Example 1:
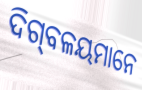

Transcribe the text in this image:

ଦିଗ୍‌ବଳୟମାନେ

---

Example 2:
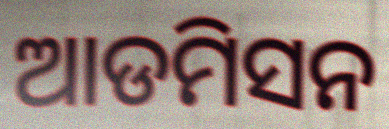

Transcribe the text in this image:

ଆଡମିସନ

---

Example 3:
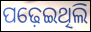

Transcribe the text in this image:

ପଢ଼େଇଥିଲି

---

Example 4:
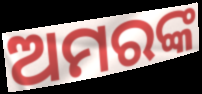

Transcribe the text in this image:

ଅମରଙ୍କ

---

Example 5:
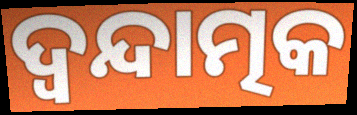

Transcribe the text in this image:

ଦ୍ୱନ୍ଦାତ୍ମକ